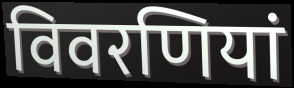
विवरणियां